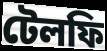
টেলফি